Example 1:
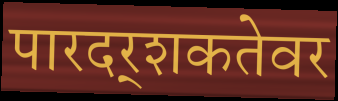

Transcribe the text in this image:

पारदर्शकतेवर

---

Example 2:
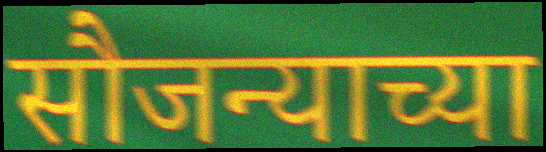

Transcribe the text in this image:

सौजन्याच्या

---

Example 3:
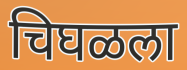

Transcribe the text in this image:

चिघळला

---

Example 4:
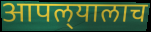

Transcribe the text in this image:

आपल्यालाच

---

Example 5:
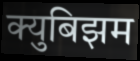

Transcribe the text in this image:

क्युबिझम